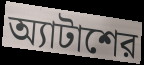
অ্যাটাশের